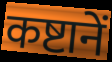
कष्टानें